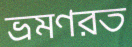
ভ্রমণরত